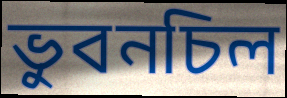
ভুবনচিল